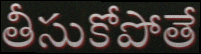
తీసుకోపోతే